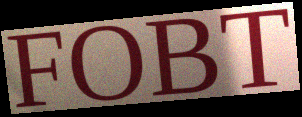
FOBT